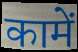
कामें